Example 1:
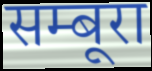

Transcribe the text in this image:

सम्बूरा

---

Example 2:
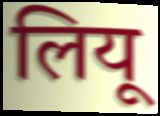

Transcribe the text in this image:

लियू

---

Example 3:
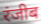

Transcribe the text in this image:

रंजीब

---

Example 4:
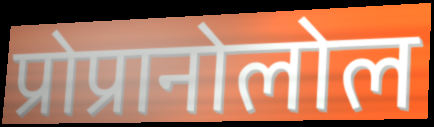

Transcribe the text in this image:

प्रोप्रानोलोल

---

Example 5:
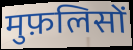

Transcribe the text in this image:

मुफ़लिसों